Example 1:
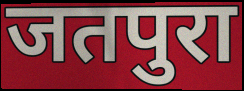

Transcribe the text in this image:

जतपुरा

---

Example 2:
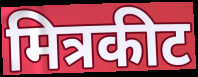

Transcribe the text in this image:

मित्रकीट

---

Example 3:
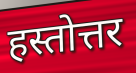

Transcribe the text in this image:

हस्तोत्तर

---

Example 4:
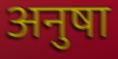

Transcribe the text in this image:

अनुषा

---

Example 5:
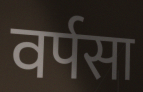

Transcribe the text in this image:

वर्पसा